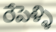
రేపెళ్ళి